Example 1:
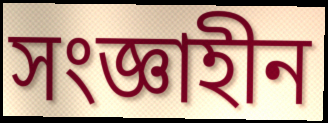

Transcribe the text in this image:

সংজ্ঞাহীন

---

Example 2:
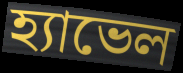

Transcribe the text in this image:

হ্যাভেল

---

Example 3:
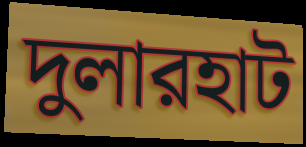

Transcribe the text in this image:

দুলারহাট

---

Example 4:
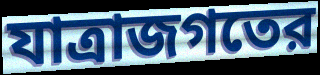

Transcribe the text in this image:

যাত্রাজগতের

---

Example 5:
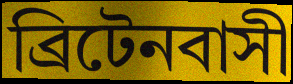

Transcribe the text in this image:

ব্রিটেনবাসী